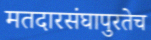
मतदारसंघापुरतेच